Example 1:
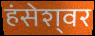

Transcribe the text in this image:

हंसेश्वर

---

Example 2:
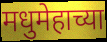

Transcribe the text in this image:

मधुमेहाच्या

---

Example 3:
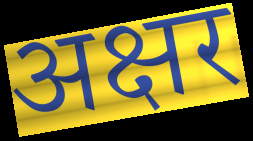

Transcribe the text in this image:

अक्षर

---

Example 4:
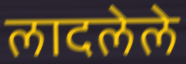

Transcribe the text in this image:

लादलेले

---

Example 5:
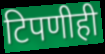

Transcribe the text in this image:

टिपणीही